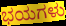
ಭಯಗಳು